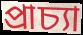
প্ৰাচ্যা